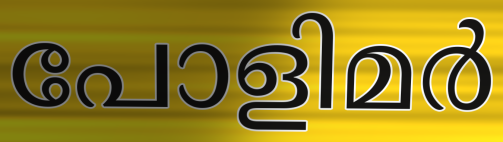
പോളിമർ